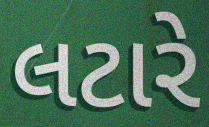
લટારે